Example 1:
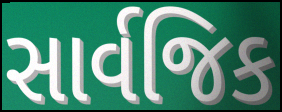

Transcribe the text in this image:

સાર્વજિક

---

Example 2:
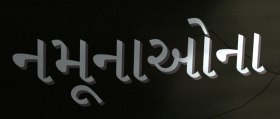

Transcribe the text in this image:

નમૂનાઓના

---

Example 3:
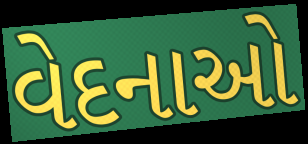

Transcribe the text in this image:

વેદનાઓ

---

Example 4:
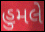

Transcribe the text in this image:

હુમલે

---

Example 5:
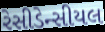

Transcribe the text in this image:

રેસીડેન્સીયલ